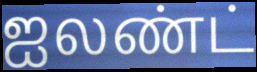
ஐலண்ட்